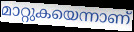
മാറ്റുകയെന്നാണ്